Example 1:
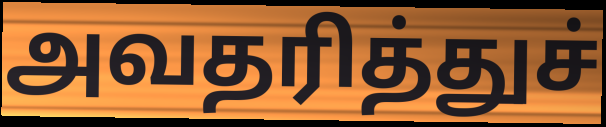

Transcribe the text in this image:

அவதரித்துச்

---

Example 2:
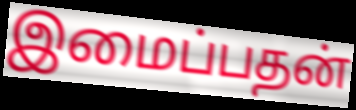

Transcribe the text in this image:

இமைப்பதன்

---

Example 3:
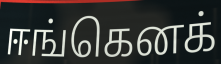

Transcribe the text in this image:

ஈங்கெனக்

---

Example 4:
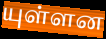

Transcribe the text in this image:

யுள்ளன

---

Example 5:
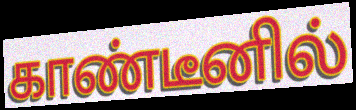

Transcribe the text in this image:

காண்டீனில்